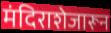
मंदिराशेजारून